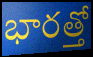
భారత్తో